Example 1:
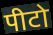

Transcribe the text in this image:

पीटो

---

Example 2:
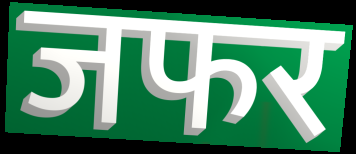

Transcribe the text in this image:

जफर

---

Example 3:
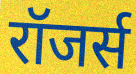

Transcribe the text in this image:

रॉजर्स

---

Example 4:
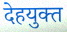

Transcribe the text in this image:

देहयुक्त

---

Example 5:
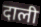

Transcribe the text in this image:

दाली